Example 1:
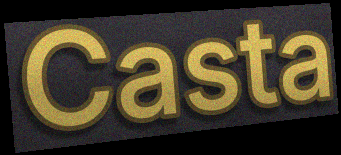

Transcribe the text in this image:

Casta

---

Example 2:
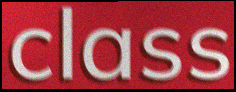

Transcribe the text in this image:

class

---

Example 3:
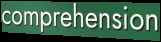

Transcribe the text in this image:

comprehension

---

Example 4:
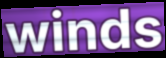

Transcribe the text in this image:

winds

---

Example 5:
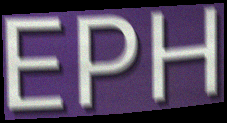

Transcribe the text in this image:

EPH